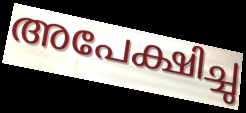
അപേക്ഷിച്ചു